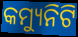
କମ୍ୟୁନିଟି